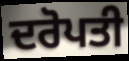
ਦਰੋਪਤੀ